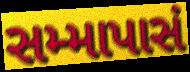
સમ્માપાસં